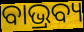
ବାଭ୍ରବ୍ୟ